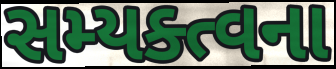
સમ્યક્ત્વના